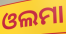
ଓଲମା